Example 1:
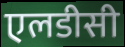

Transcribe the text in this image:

एलडीसी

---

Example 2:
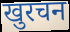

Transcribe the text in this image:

खुरचन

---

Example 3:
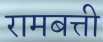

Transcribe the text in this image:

रामबत्ती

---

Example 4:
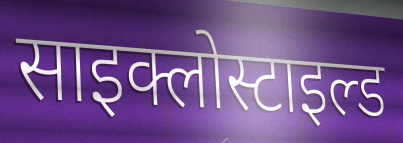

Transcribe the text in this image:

साइक्लोस्टाइल्ड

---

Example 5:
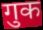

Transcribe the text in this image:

गुक